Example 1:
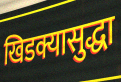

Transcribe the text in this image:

खिडक्यासुद्धा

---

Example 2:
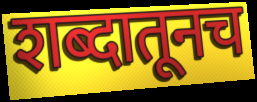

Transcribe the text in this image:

शब्दातूनच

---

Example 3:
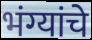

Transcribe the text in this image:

भंग्यांचे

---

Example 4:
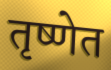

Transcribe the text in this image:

तृष्णेत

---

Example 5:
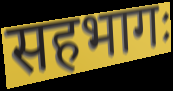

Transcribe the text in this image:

सहभागः